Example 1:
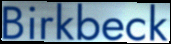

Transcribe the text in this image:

Birkbeck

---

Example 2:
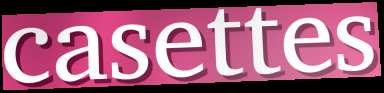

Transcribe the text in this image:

casettes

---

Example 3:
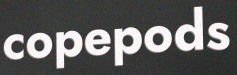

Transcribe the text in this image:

copepods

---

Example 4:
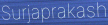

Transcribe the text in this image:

Surjaprakash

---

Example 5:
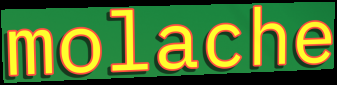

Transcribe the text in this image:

molache